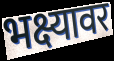
भक्ष्यावर